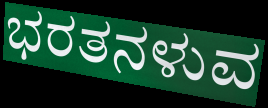
ಭರತನಳುವ